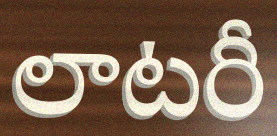
లాటరీ